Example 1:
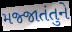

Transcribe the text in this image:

મજ્જાતંતુને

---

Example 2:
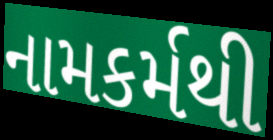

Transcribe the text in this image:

નામકર્મથી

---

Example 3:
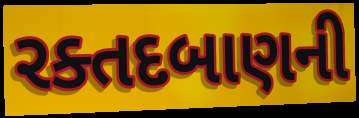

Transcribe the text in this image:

રક્તદબાણની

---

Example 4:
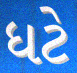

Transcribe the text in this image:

ધટે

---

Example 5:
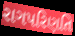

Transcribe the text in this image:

રાગપરિણતિ